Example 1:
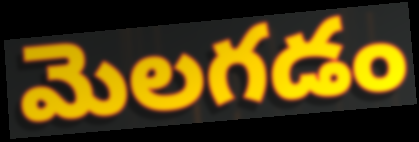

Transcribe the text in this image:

మెలగడం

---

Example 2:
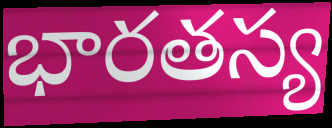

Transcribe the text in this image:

భారతస్య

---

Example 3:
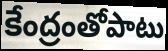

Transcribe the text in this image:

కేంద్రంతోపాటు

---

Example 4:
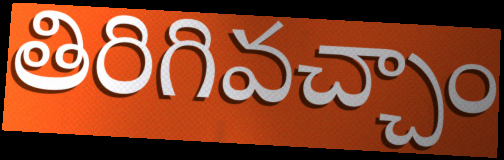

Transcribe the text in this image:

తిరిగివచ్చాం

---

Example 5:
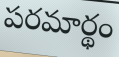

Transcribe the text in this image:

పరమార్థం